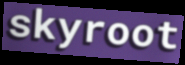
skyroot